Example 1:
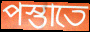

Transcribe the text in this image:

পস্তাতে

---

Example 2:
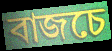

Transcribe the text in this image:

বাজচে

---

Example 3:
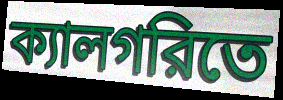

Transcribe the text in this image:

ক্যালগরিতে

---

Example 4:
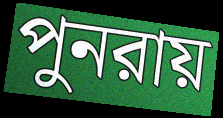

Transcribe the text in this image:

পুনরায়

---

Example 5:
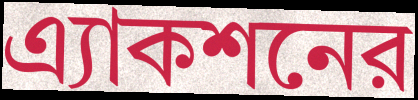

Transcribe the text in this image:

এ্যাকশনের